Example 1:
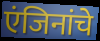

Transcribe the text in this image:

एंजिनांचे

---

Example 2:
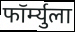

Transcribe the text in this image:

फॉर्म्युला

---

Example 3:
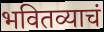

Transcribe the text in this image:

भवितव्याचं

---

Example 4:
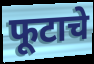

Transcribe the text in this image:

फूटाचे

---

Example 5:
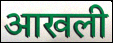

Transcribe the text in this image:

आखली